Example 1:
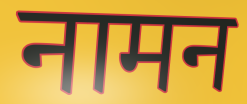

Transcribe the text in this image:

नामन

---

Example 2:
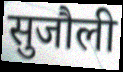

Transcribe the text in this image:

सुजौली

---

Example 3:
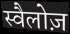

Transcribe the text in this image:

स्वैलोज़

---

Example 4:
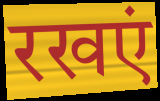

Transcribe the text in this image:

रखएं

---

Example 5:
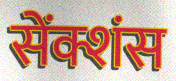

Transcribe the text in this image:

सेंक्शंस